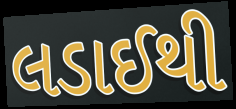
લડાઈથી